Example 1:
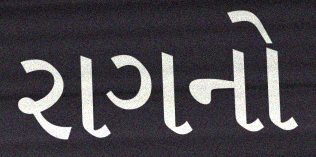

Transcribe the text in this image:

રાગનો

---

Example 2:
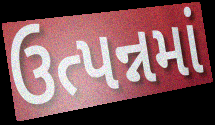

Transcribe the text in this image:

ઉત્પન્નમાં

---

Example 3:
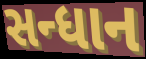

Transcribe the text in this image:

સન્ધાન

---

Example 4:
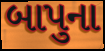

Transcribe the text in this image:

બાપુના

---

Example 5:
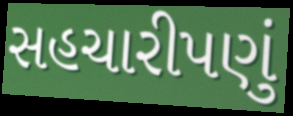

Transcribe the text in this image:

સહચારીપણું